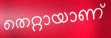
തെറ്റായാണ്